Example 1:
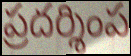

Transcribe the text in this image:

ప్రదర్శింప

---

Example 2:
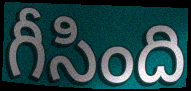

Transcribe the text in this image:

గీసింది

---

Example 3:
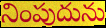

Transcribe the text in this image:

నింపుదును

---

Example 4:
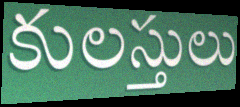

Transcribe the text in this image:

కులస్తులు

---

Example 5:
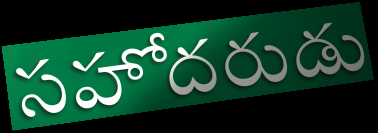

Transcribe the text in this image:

సహోదరుడు